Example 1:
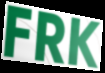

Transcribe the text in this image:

FRK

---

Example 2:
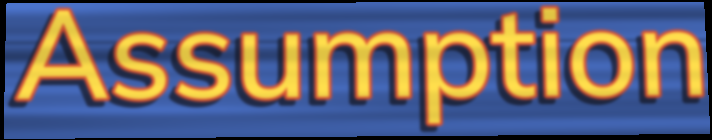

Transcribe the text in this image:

Assumption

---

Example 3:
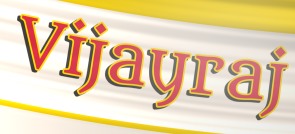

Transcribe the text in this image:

Vijayraj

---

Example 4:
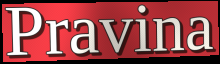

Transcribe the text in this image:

Pravina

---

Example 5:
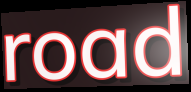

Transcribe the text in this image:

road